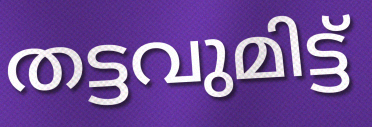
തട്ടവുമിട്ട്